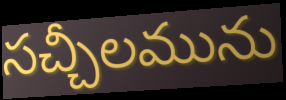
సచ్చీలమును